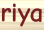
riya